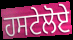
ਹਸਟੇਲੋਏ